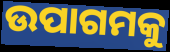
ଉପାଗମକୁ